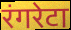
रंगरेटा